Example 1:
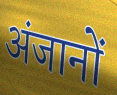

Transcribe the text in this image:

अंजानों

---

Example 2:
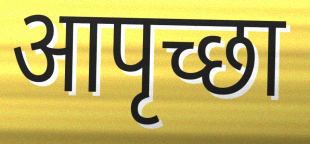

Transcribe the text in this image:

आपृच्छा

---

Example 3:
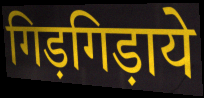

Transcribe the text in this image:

गिड़गिड़ाये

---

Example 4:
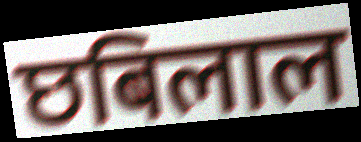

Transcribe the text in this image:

छबिलाल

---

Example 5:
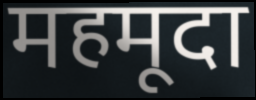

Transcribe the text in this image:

महमूदा